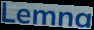
Lemna